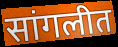
सांगलीत